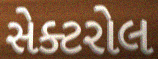
સેક્ટરોલ